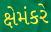
ક્ષેમંકરે